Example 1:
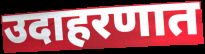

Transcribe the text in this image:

उदाहरणात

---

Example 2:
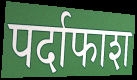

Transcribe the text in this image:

पर्दाफाश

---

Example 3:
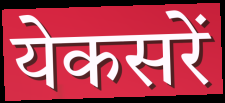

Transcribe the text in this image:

येकसरें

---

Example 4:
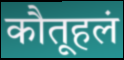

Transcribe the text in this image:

कौतूहलं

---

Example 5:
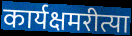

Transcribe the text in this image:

कार्यक्षमरीत्या